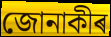
জোনাকীৰ